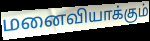
மனைவியாக்கும்